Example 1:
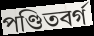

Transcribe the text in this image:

পণ্ডিতবর্গ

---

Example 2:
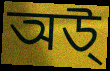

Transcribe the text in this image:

অউ্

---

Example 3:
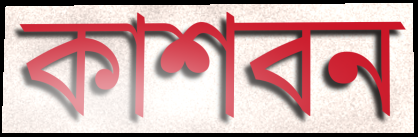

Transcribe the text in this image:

কাশবন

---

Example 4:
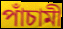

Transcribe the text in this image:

পাঁচামী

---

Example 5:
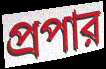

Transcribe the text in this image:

প্রপার